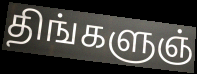
திங்களுஞ்